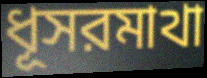
ধূসরমাথা